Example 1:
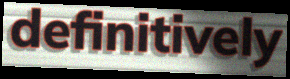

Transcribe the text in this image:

definitively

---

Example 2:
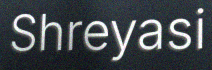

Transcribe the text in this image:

Shreyasi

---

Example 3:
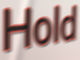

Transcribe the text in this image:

Hold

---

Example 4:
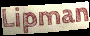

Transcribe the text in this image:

Lipman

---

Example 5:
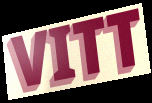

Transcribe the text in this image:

VITT